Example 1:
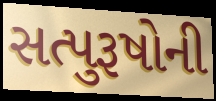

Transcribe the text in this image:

સત્પુરૂષોની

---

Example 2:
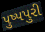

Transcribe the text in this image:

પુષ્પપુરી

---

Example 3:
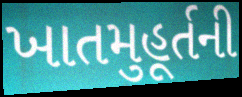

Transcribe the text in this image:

ખાતમુહૂર્તની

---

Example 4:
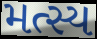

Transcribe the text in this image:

મત્સ્ય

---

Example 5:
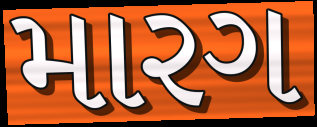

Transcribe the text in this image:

મારગ